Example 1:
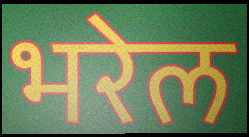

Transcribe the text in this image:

भरेल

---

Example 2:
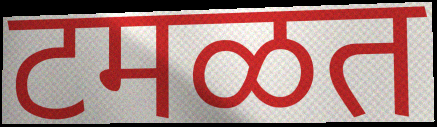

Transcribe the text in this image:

टमळत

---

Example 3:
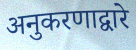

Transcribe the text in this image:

अनुकरणाद्वारे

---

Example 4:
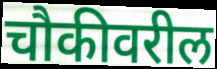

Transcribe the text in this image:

चौकीवरील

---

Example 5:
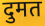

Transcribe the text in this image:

दुमत